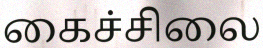
கைச்சிலை